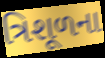
ત્રિશૂળના